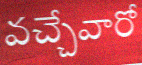
వచ్చేవారో